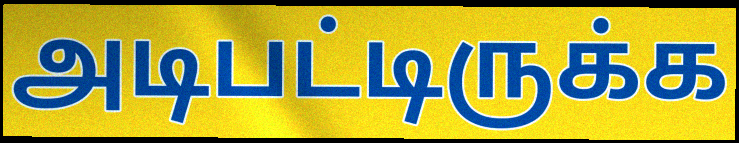
அடிபட்டிருக்க